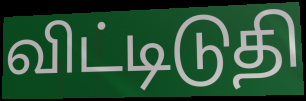
விட்டிடுதி